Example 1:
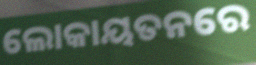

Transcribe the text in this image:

ଲୋକାୟତନରେ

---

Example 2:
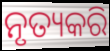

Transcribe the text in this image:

ନୃତ୍ୟକରି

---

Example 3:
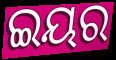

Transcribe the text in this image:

ଇୟର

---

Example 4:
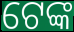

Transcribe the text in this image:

ଟେଙ୍କ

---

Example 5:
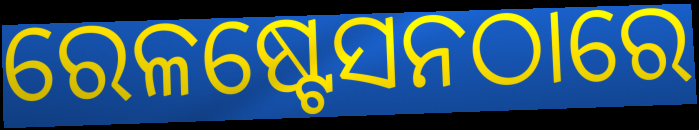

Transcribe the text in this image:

ରେଳଷ୍ଟେସନଠାରେ